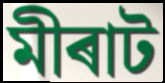
মীৰাট